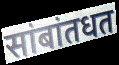
सांबांतधत